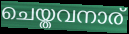
ചെയ്തവനാര്